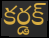
కర్డక్